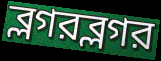
ব্লগরব্লগর